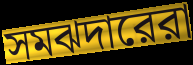
সমঝদারেরা